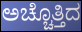
ಅಚ್ಚೊತ್ತಿದ